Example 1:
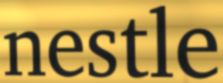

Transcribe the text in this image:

nestle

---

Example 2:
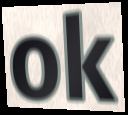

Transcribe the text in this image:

ok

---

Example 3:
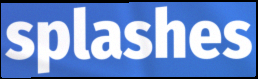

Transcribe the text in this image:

splashes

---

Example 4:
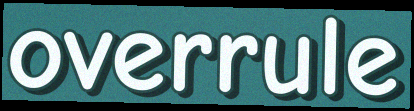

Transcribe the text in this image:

overrule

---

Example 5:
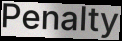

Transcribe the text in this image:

Penalty